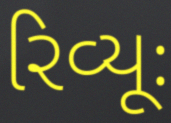
રિવ્યૂઃ